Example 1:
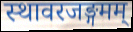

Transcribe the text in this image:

स्थावरजङ्गमम्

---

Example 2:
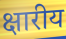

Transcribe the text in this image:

क्षारीय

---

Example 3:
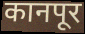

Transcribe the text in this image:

कानपूर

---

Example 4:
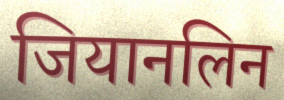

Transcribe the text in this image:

जियानलिन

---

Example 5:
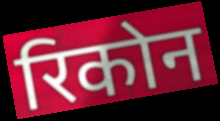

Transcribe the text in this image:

रिकोन